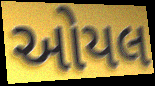
ઓયલ